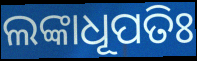
ଲଙ୍କାଧୂପତିଃ